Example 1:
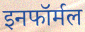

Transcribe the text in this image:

इनफॉर्मल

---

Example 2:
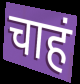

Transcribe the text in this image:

चाहं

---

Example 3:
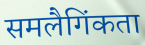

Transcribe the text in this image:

समलैगिंकता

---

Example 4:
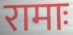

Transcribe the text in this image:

रामाः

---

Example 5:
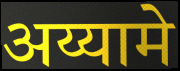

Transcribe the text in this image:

अय्यामे